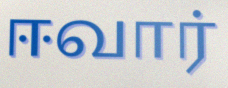
ஈவார்